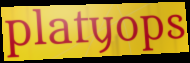
platyops